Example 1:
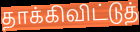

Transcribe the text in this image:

தாக்கிவிட்டுத்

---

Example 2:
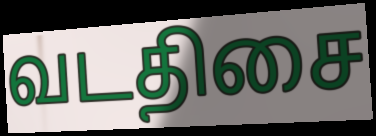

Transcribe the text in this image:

வடதிசை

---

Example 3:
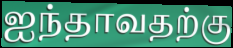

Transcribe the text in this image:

ஐந்தாவதற்கு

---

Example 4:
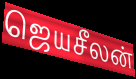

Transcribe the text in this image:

ஜெயசீலன்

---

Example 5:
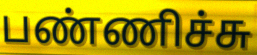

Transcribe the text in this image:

பண்ணிச்சு